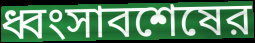
ধ্বংসাবশেষের